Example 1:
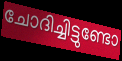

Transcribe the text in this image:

ചോദിച്ചിട്ടുണ്ടോ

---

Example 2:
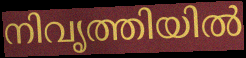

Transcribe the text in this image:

നിവൃത്തിയിൽ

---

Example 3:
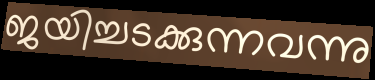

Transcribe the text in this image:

ജയിച്ചടക്കുന്നവന്നു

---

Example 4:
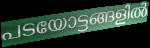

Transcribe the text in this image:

പടയോട്ടങ്ങളിൽ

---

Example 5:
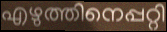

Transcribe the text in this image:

എഴുത്തിനെപ്പറ്റി